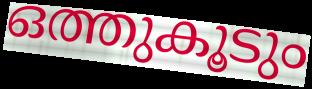
ഒത്തുകൂടും